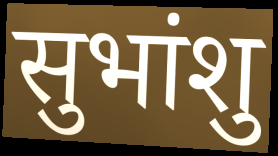
सुभांशु